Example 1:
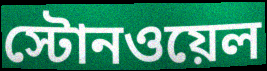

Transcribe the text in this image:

স্টোনওয়েল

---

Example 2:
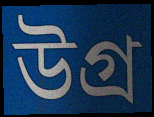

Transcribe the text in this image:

উগ্র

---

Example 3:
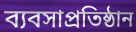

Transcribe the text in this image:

ব্যবসাপ্রতিষ্ঠান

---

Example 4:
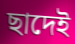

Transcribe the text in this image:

ছাদেই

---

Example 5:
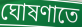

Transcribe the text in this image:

ঘোষণাতে